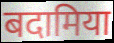
बदामिया